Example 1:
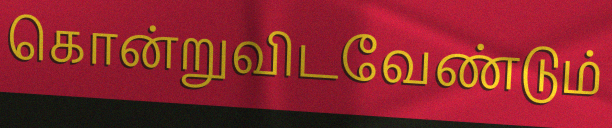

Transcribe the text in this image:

கொன்றுவிடவேண்டும்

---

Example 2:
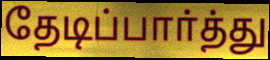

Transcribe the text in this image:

தேடிப்பார்த்து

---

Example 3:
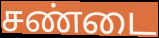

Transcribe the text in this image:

சண்டை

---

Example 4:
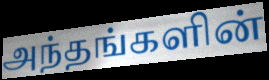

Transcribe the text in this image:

அந்தங்களின்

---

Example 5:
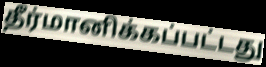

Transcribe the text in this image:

தீர்மானிக்கப்பட்டது